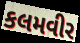
કલમવીર